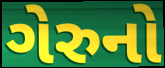
ગેરુનો